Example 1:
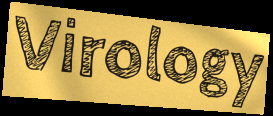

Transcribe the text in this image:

Virology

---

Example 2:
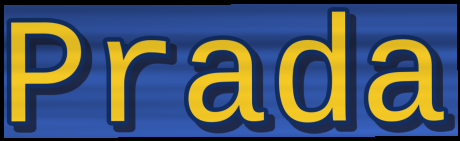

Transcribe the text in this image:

Prada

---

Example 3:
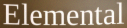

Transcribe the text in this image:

Elemental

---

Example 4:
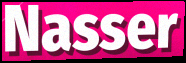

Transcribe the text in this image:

Nasser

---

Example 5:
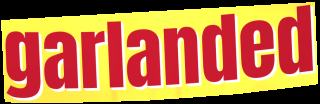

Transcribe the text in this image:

garlanded